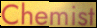
Chemist